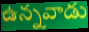
ఉన్నవాడు